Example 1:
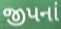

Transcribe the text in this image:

જીપનાં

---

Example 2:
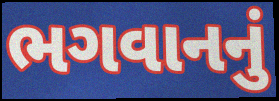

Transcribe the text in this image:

ભગવાનનું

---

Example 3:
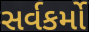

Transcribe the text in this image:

સર્વકર્મો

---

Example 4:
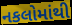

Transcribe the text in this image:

નકલોમાંથી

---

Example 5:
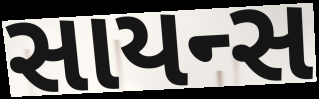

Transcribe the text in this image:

સાયન્સ